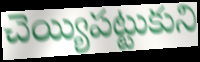
చెయ్యిపట్టుకుని